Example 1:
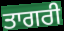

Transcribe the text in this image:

ਤਾਗਰੀ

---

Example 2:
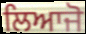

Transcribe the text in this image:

ਲਿਆਜੋ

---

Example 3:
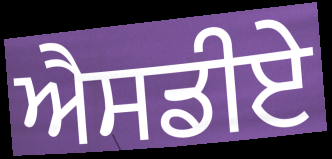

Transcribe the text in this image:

ਐਸਡੀਏ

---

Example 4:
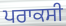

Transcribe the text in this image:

ਪਰਾਕਸੀ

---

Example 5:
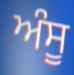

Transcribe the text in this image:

ਅੰਸੂ